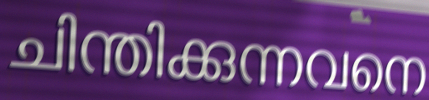
ചിന്തിക്കുന്നവനെ